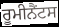
ਰੂਮੀਨੈਂਟਸ